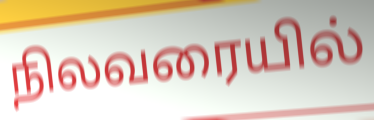
நிலவரையில்